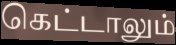
கெட்டாலும்